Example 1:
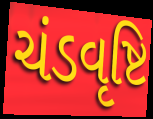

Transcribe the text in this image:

ચંડવૃષ્ટિ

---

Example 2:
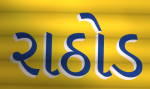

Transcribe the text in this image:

રાઠોડ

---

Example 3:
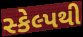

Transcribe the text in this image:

સ્કેલ્પથી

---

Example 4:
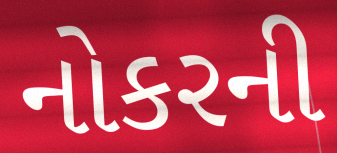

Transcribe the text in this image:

નોકરની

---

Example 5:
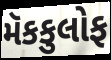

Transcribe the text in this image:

મૅકકુલોફ